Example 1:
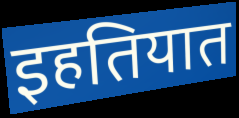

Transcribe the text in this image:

इहतियात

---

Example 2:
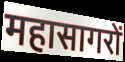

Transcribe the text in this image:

महासागरों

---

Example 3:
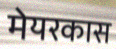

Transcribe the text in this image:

मेयरकास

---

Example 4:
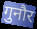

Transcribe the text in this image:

गुनौर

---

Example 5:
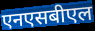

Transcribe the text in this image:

एनएसबीएल